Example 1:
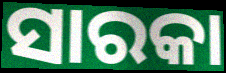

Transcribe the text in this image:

ସାରକା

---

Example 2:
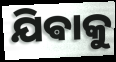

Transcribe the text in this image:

ଯିଵାକୁ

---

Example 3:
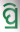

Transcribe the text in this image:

ପ୍ରି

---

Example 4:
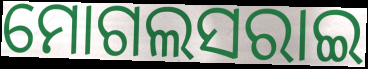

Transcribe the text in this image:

ମୋଗଲସରାଇ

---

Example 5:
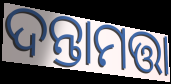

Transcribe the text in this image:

ଦନ୍ତାମତ୍ତା